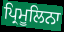
ਪ੍ਰਿਮੂਲਿਨਾ